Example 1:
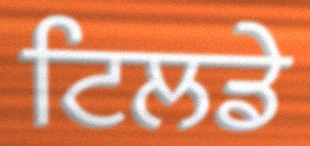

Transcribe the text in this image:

ਟਿਲਡੇ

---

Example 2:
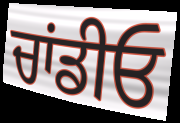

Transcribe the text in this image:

ਚਾਂਡੀਓ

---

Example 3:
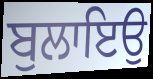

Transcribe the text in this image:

ਬੁਲਾਇਉ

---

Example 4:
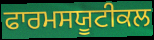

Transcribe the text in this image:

ਫਾਰਮਸਯੂਟੀਕਲ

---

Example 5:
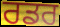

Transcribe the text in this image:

ਰਡਰ